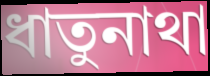
ধাতুনাথা